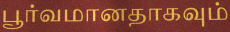
பூர்வமானதாகவும்